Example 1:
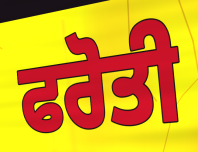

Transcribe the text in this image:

ਫਰੋਤੀ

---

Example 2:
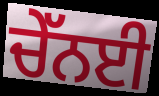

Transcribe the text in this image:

ਚੇੱਨਈ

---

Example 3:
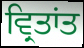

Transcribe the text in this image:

ਵ੍ਰਿਤਾਂਤ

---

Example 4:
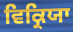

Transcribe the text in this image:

ਵਿਕ੍ਰਿਯਾ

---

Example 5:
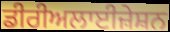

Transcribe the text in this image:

ਡੀਰੀਅਲਾਈਜ਼ੇਸ਼ਨ